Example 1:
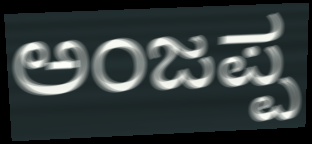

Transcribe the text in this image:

ಅಂಜಪ್ಪ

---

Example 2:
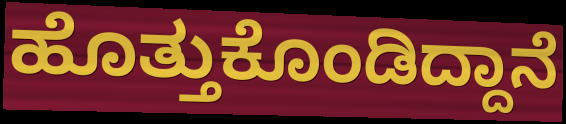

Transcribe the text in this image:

ಹೊತ್ತುಕೊಂಡಿದ್ದಾನೆ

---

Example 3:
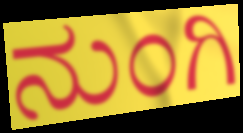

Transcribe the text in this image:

ನುಂಗಿ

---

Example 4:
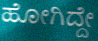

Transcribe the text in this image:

ಹೋಗಿದ್ದೇ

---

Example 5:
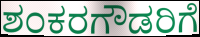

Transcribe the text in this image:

ಶಂಕರಗೌಡರಿಗೆ